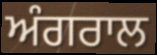
ਅੰਗਰਾਲ